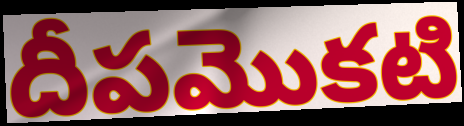
దీపమొకటి